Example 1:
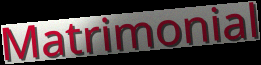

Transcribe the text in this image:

Matrimonial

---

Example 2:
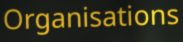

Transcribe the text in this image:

Organisations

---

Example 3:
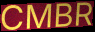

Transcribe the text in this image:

CMBR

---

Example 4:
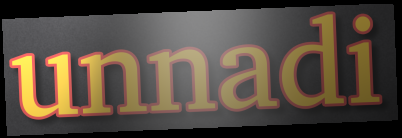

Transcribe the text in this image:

unnadi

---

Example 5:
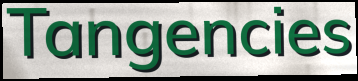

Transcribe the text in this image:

Tangencies